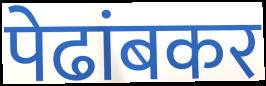
पेढांबकर